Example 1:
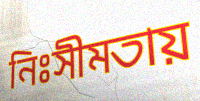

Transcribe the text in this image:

নিঃসীমতায়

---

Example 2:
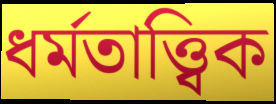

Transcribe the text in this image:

ধর্মতাত্ত্বিক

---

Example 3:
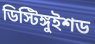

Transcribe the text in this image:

ডিস্টিঙ্গুইশড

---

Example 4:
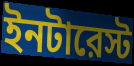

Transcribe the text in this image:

ইনটারেস্ট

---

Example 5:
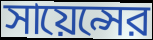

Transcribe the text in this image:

সায়েন্সের